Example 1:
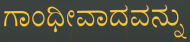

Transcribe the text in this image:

ಗಾಂಧೀವಾದವನ್ನು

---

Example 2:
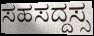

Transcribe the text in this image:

ಸಹಸದ್ದಸ್ಸ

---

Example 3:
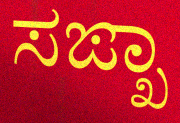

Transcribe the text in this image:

ಸಙ್ಖಾ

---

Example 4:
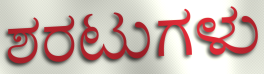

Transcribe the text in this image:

ಶರಟುಗಳು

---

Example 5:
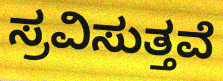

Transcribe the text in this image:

ಸ್ರವಿಸುತ್ತವೆ